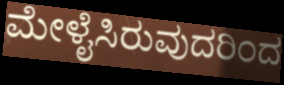
ಮೇಳೈಸಿರುವುದರಿಂದ